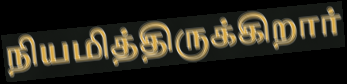
நியமித்திருக்கிறார்